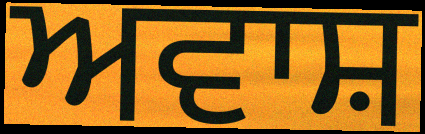
ਅਵਾਸ਼